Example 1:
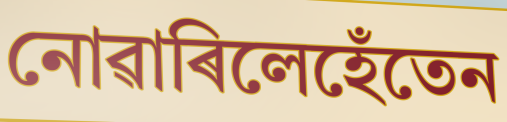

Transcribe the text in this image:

নোৱাৰিলেহেঁতেন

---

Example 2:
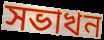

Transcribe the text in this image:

সভাখন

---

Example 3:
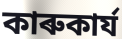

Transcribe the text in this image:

কাৰুকাৰ্য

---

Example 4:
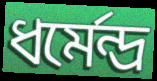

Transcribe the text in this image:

ধৰ্মেন্দ্ৰ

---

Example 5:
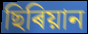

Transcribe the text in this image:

ছিৰিয়ান